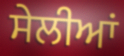
ਸੇਲੀਆਂ